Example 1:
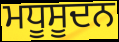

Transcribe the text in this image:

ਮਧੂਸੂਦਨ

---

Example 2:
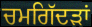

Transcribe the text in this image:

ਚਮਗਿੱਦੜਾਂ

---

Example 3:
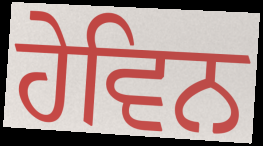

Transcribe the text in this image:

ਹੇਵਿਨ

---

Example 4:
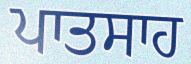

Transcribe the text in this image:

ਪਾਤਸਾਹ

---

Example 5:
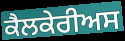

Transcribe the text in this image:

ਕੈਲਕੇਰੀਅਸ